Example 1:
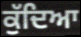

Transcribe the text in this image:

ਕੁੱਦਿਆ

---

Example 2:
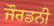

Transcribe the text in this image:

ਜੌਰਡਨੀ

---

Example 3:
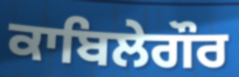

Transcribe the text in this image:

ਕਾਬਿਲੇਗੌਰ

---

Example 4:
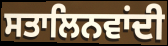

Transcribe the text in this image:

ਸਤਾਲਿਨਵਾਂਦੀ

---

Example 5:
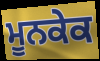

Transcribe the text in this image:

ਮੂਨਕੇਕ